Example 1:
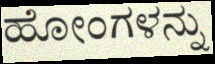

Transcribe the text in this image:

ಹೋಂಗಳನ್ನು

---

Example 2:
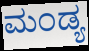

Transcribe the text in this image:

ಮಂಡ್ಯ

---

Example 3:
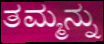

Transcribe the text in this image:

ತಮ್ಮನ್ನು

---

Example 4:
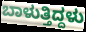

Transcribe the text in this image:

ಬಾಳುತ್ತಿದ್ದಳು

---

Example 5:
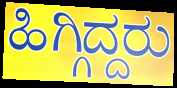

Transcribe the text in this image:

ಹಿಗ್ಗಿದ್ದರು